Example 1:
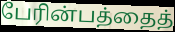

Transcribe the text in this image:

பேரின்பத்தைத்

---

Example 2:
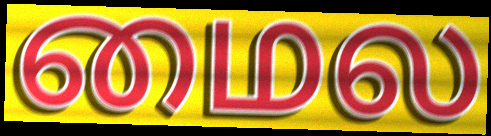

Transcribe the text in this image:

மைல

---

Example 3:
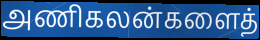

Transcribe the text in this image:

அணிகலன்களைத்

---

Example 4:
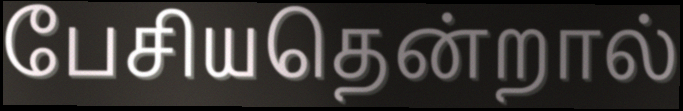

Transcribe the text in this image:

பேசியதென்றால்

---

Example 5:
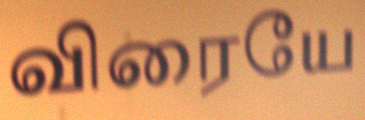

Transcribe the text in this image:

விரையே